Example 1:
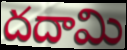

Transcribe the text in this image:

దదామి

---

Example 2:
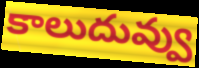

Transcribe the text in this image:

కాలుదువ్వు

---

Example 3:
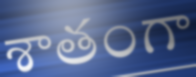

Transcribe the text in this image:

శాతంగా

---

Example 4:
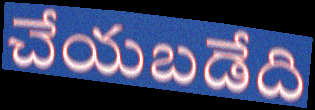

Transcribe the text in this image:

చేయబడేది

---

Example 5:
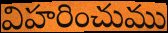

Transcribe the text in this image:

విహరించుము